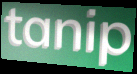
tanip